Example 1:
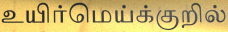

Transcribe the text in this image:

உயிர்மெய்க்குறில்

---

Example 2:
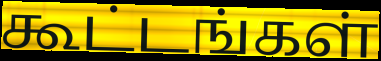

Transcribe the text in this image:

கூட்டங்கள்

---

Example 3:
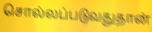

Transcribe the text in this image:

சொல்லப்படுவதுதான்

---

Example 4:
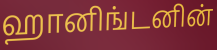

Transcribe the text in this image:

ஹானிங்டனின்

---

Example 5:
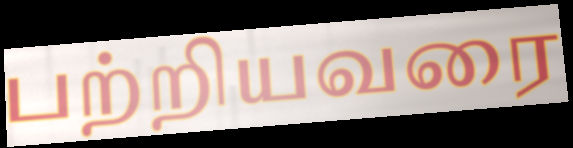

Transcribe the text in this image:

பற்றியவரை